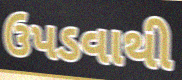
ઉપડવાથી